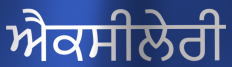
ਐਕਸੀਲੇਰੀ